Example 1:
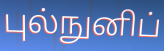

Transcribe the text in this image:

புல்நுனிப்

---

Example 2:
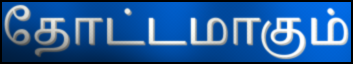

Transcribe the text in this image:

தோட்டமாகும்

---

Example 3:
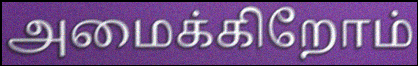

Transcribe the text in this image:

அமைக்கிறோம்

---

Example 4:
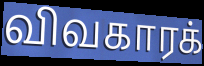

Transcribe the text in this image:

விவகாரக்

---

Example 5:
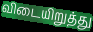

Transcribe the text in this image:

விடையிறுத்து